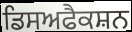
ਡਿਸਅਫੈਕਸ਼ਨ